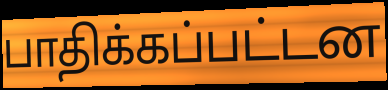
பாதிக்கப்பட்டன